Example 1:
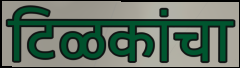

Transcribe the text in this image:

टिळकांचा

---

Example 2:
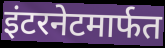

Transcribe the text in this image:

इंटरनेटमार्फत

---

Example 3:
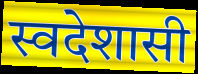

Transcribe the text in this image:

स्वदेशासी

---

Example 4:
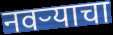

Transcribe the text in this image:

नवऱ्याचा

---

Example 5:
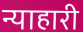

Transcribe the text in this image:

न्याहारी